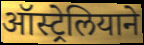
ऑस्ट्रेलियाने